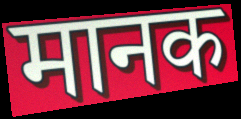
मानक